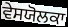
ਵੇਸਯੋਲਕਾ